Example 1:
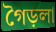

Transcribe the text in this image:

গৈড়লা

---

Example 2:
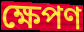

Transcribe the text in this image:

ক্ষেপণ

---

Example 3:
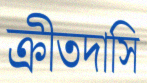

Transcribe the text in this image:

ক্রীতদাসি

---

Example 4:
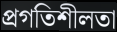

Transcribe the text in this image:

প্রগতিশীলতা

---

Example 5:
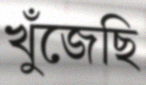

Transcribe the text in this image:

খুঁজেছি